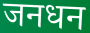
जनधन